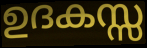
ഉദകസ്സ